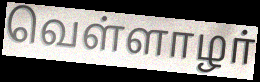
வெள்ளாழர்